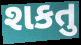
શકતુ